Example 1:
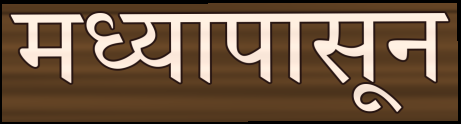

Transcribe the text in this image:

मध्यापासून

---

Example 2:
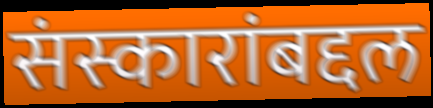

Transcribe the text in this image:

संस्कारांबद्दल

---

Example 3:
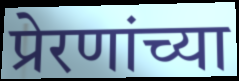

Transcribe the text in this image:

प्रेरणांच्या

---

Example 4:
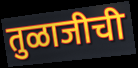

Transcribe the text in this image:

तुळाजीची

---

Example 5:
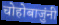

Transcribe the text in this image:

चोहोबाजुंनी